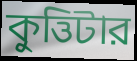
কুত্তিটার